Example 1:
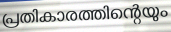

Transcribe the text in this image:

പ്രതികാരത്തിന്റെയും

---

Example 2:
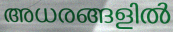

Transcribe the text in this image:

അധരങ്ങളിൽ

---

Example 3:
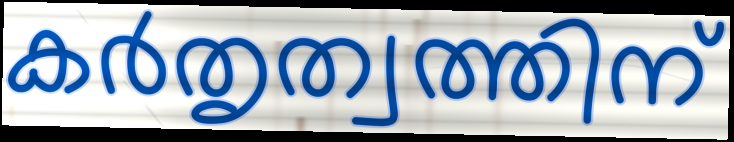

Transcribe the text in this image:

കർതൃത്വത്തിന്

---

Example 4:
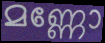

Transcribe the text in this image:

മണ്ണോ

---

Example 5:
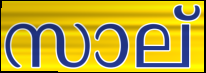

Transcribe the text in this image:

സാല്